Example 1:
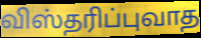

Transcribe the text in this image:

விஸ்தரிப்புவாத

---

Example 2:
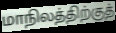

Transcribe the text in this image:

மாநிலத்திற்குத்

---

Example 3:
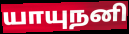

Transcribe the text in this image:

யாயுநனி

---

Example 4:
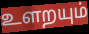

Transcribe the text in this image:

உளறயும்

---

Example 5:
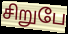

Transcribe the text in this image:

சிறுபே